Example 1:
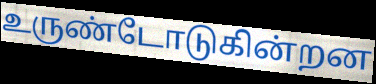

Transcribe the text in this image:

உருண்டோடுகின்றன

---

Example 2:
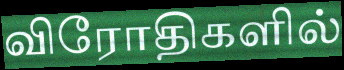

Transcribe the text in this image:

விரோதிகளில்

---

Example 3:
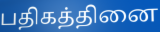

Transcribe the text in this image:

பதிகத்தினை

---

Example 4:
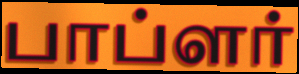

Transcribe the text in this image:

பாப்ளர்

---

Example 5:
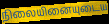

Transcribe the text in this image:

நிலையினையுடைய